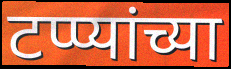
टप्प्यांच्या